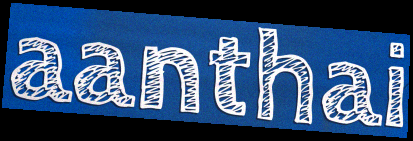
aanthai